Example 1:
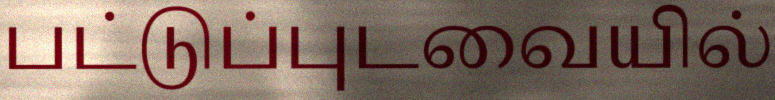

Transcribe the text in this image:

பட்டுப்புடவையில்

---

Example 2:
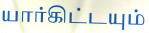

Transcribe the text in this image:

யார்கிட்டயும்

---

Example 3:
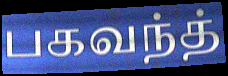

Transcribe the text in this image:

பகவந்த்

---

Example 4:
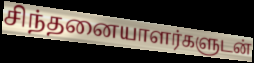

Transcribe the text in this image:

சிந்தனையாளர்களுடன்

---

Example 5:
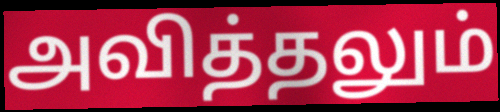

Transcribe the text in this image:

அவித்தலும்